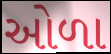
ઓળા